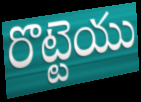
రొట్టెయు